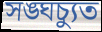
সঙ্ঘচ্যুত